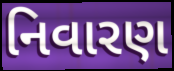
નિવારણ